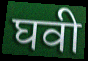
घवी